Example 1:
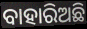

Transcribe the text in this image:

ବାହାରିଅଛି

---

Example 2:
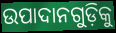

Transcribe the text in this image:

ଉପାଦାନଗୁଡ଼ିକୁ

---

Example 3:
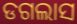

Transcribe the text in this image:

ଡଗଲାସ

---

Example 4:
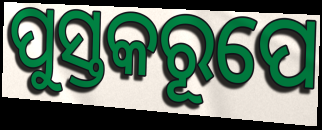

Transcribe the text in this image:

ପୁସ୍ତକରୂପେ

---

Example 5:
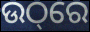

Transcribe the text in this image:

ଉଠ୍‌ରେ